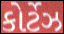
કોર્ટેઝ